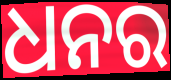
ଧନର